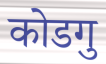
कोडगु